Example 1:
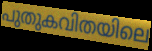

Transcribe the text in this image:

പുതുകവിതയിലെ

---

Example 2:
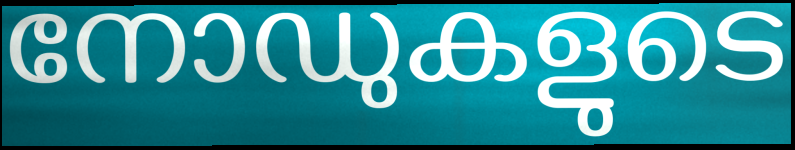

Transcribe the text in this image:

നോഡുകളുടെ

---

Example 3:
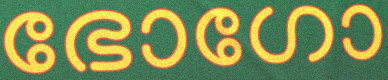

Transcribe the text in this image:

ഭോഗോ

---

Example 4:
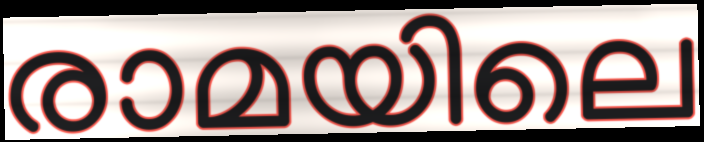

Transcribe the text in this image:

രാമയിലെ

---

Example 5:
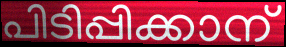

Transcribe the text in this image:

പിടിപ്പിക്കാന്